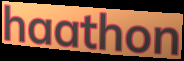
haathon